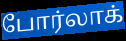
போர்லாக்